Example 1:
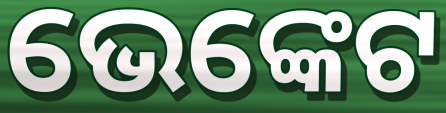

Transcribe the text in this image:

ଭେଙ୍କେଟ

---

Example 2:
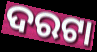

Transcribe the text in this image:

ଦରଟା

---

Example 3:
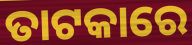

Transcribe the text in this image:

ତାଟକାରେ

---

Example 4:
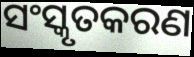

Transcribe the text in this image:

ସଂସ୍କୃତକରଣ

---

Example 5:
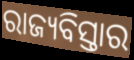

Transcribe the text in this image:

ରାଜ୍ୟବିସ୍ତାର